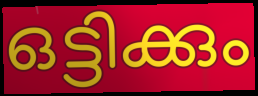
ഒട്ടിക്കും